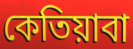
কেতিয়াবা